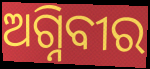
ଅଗ୍ନିବୀର